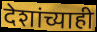
देशांच्याही